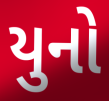
યુનો